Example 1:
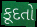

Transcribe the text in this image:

કૂદતો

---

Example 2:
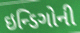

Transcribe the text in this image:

ઇન્ડિગોની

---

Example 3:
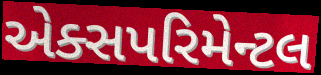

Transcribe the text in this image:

એક્સપરિમેન્ટલ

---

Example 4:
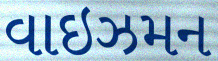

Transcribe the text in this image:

વાઇઝમન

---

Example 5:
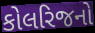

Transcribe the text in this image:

કોલરિજનો